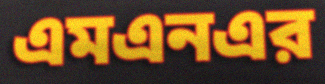
এমএনএর